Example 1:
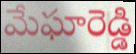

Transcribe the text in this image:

మేఘారెడ్డి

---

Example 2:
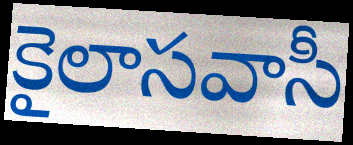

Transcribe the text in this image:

కైలాసవాసీ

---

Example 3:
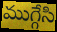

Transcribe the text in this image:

ముగ్గేసి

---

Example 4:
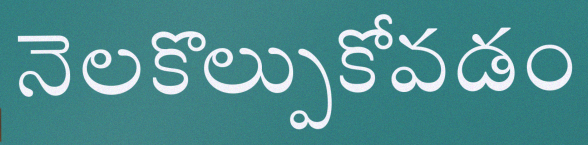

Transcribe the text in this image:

నెలకొల్పుకోవడం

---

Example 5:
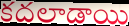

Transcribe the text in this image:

కదలాడాయి